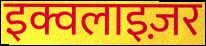
इक्वलाइज़र